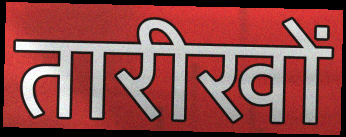
तारीखों